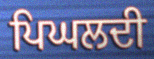
ਪਿਘਲਦੀ